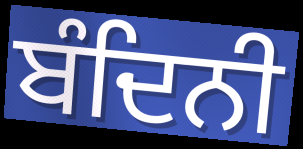
ਬੰਦਿਨੀ